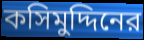
কসিমুদ্দিনের